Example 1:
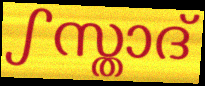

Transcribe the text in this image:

ഽസ്താദ്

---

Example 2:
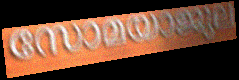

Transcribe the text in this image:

സോമയാജുല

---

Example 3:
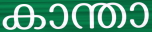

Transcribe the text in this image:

കാന്താ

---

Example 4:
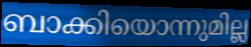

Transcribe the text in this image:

ബാക്കിയൊന്നുമില്ല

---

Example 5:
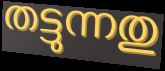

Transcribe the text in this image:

തട്ടുന്നതു